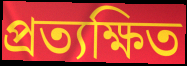
প্রত্যক্ষিত